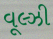
વૂલ્ઝી